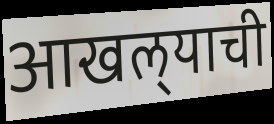
आखल्याची